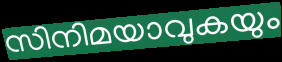
സിനിമയാവുകയും